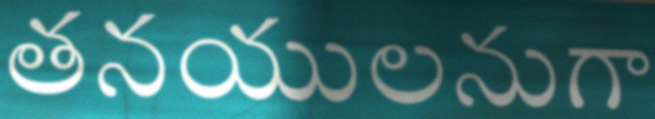
తనయులనుగా